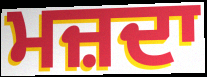
ਮਜ਼ਦਾ